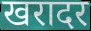
खरादर